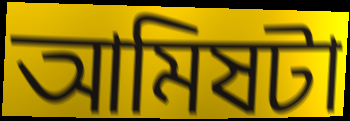
আমিষটা